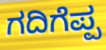
ಗದಿಗೆಪ್ಪ